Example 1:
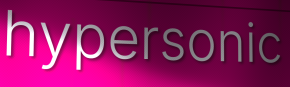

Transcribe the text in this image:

hypersonic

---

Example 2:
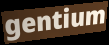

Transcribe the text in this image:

gentium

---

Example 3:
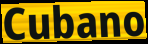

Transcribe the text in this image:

Cubano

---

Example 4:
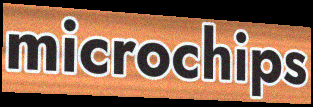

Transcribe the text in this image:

microchips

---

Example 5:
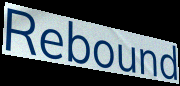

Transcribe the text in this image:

Rebound